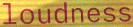
loudness